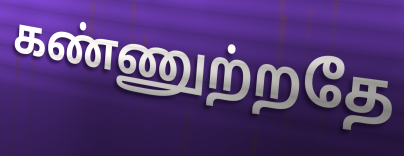
கண்ணுற்றதே